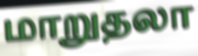
மாறுதலா